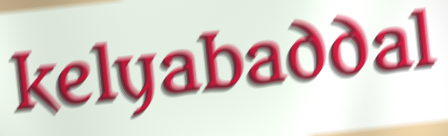
kelyabaddal